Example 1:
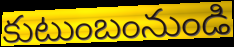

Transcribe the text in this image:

కుటుంబంనుండి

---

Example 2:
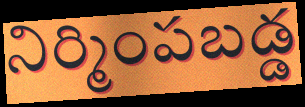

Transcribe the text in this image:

నిర్మింపబడ్డ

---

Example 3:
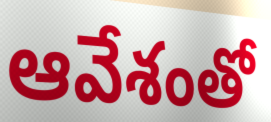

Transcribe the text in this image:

ఆవేశంతో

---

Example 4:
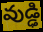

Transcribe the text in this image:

వుడ్ఢి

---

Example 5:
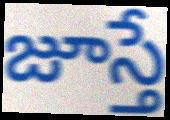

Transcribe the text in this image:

జూస్తే